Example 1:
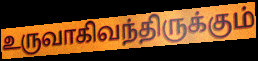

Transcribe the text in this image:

உருவாகிவந்திருக்கும்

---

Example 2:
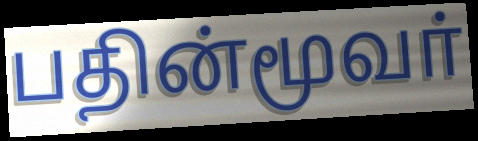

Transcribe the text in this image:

பதின்மூவர்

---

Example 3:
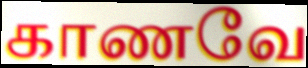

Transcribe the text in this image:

காணவே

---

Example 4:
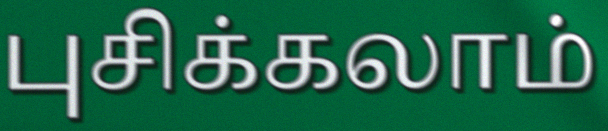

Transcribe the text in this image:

புசிக்கலாம்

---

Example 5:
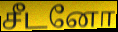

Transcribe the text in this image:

சீடனோ